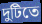
দুটিতে